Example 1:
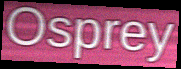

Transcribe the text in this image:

Osprey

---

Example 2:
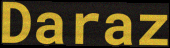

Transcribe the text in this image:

Daraz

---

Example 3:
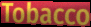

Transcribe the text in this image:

Tobacco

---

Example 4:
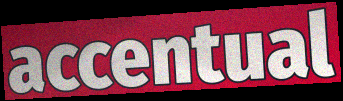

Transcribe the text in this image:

accentual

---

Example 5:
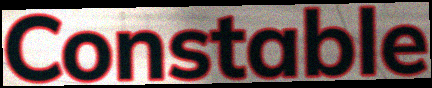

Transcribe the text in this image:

Constable